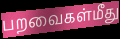
பறவைகள்மீது